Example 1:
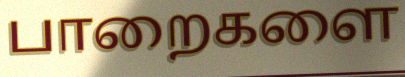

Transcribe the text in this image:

பாறைகளை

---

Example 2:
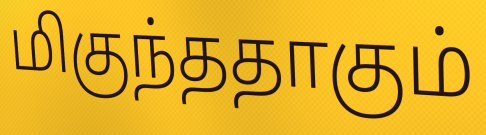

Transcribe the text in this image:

மிகுந்ததாகும்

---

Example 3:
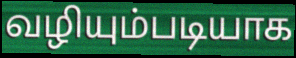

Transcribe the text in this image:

வழியும்படியாக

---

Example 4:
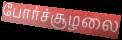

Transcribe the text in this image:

போர்ச்சூழலை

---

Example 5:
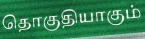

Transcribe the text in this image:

தொகுதியாகும்